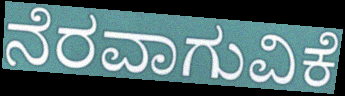
ನೆರವಾಗುವಿಕೆ